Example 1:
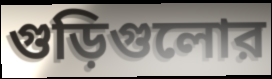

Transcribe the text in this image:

গুড়িগুলোর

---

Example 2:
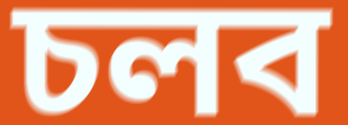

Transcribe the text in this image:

চলব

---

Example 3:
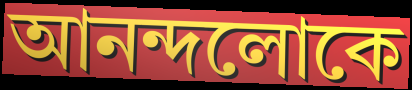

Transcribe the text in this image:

আনন্দলোকে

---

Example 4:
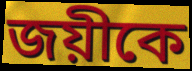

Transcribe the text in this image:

জয়ীকে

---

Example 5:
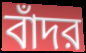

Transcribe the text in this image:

বাঁদর